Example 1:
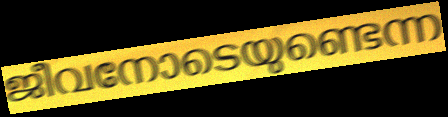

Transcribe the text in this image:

ജീവനോടെയുണ്ടെന്ന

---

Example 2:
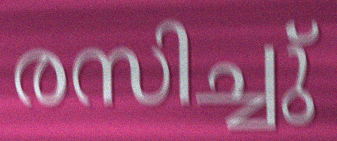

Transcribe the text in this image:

രസിച്ചു്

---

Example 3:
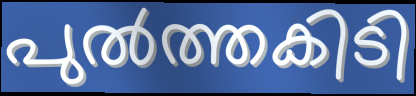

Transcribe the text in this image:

പുൽത്തകിടി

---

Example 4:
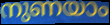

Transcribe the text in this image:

നുണയാം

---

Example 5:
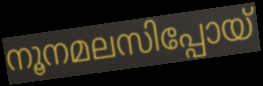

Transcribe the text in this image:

നൂനമലസിപ്പോയ്